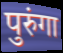
पुरुंगा